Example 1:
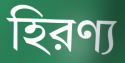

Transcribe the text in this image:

হিরণ্য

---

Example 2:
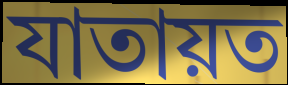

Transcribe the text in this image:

যাতায়ত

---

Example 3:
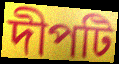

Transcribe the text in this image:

দীপটি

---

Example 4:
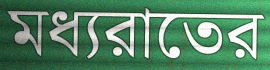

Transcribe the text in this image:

মধ্যরাতের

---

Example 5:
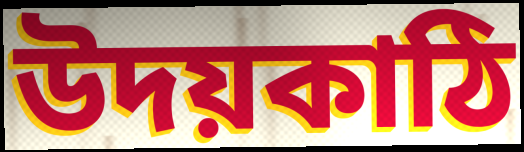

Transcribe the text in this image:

উদয়কাঠি